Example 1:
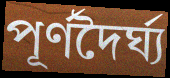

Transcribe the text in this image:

পূৰ্ণদৈৰ্ঘ্য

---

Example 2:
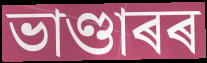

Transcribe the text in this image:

ভাণ্ডাৰৰ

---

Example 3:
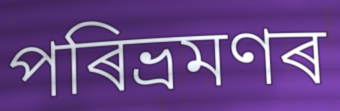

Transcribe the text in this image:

পৰিভ্ৰমণৰ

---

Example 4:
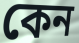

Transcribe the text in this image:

কেন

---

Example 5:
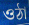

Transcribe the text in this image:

ওঠা